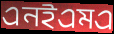
এনইএমএ